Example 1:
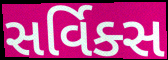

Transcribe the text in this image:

સર્વિક્સ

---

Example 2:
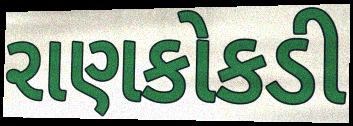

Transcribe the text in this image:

રાણકોકડી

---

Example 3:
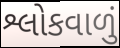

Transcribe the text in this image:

શ્લોકવાળું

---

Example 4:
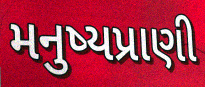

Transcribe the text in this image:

મનુષ્યપ્રાણી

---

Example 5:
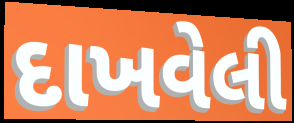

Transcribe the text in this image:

દાખવેલી